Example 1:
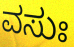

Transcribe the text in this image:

ವಸುಃ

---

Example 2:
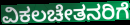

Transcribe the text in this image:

ವಿಕಲಚೇತನರಿಗೆ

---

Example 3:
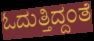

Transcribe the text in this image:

ಓದುತ್ತಿದ್ದಂತೆ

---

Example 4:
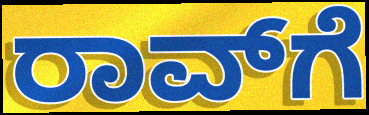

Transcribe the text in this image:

ರಾವ್‌ಗೆ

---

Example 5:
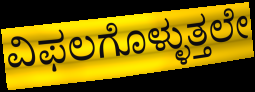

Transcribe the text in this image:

ವಿಫಲಗೊಳ್ಳುತ್ತಲೇ